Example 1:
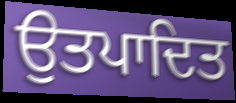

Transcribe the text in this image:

ਉਤਪਾਦਿਤ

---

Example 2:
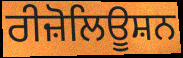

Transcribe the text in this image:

ਰੀਜ਼ੋਲਿਊਸ਼ਨ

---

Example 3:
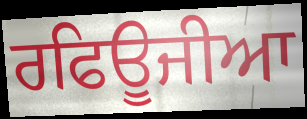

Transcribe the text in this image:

ਰਫਿਊਜੀਆ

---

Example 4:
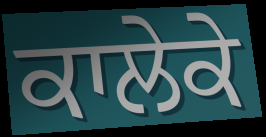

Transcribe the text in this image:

ਕਾਲੇਕੇ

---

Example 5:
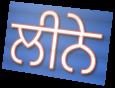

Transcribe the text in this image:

ਲੀਨੇ